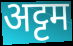
अट्टम